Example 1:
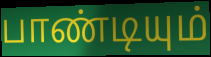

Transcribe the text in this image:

பாண்டியும்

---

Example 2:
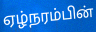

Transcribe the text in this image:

ஏழ்நரம்பின்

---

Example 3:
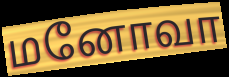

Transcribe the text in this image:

மனோவா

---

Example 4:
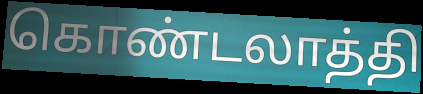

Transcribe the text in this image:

கொண்டலாத்தி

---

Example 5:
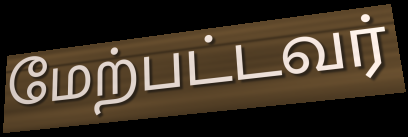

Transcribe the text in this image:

மேற்பட்டவர்